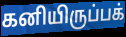
கனியிருப்பக்